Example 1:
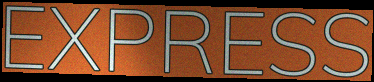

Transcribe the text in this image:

EXPRESS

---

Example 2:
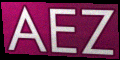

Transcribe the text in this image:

AEZ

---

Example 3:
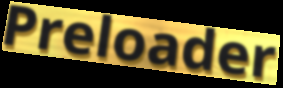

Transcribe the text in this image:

Preloader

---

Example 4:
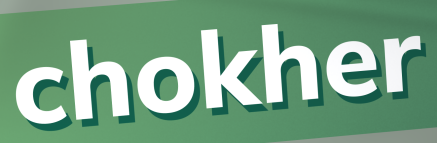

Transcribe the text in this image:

chokher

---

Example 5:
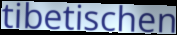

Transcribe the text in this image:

tibetischen